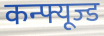
कन्फ्यूज्ड